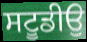
ਸਟੂਡੀਉ